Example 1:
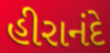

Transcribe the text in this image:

હીરાનંદે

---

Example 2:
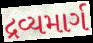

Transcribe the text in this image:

દ્રવ્યમાર્ગ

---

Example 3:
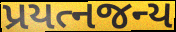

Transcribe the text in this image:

પ્રયત્નજન્ય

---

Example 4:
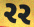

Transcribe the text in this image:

રર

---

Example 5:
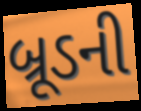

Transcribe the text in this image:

બ્રૂડની